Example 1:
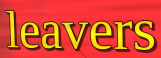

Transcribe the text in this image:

leavers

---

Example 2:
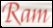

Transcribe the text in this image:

Ram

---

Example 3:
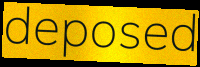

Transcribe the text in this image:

deposed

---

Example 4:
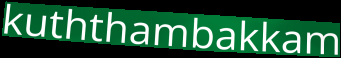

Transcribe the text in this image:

kuththambakkam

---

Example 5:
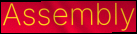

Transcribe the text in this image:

Assembly